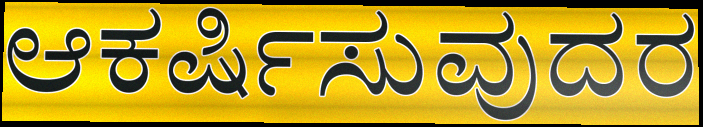
ಆಕರ್ಷಿಸುವುದರ